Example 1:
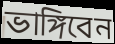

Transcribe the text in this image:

ভাঙ্গিবেন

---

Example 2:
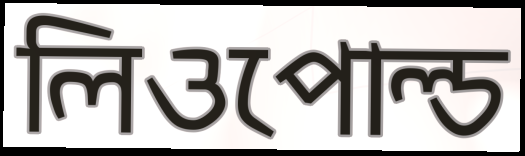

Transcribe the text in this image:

লিওপোল্ড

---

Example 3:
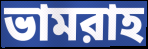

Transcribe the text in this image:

ভামরাহ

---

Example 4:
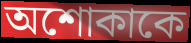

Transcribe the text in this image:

অশোকাকে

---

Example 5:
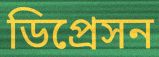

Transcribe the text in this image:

ডিপ্রেসন